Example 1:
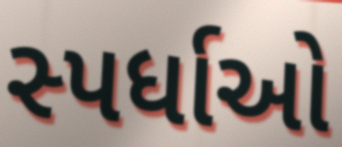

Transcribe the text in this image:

સ્પર્ધાઓ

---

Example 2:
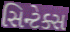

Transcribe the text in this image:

સિન્ટેક્સ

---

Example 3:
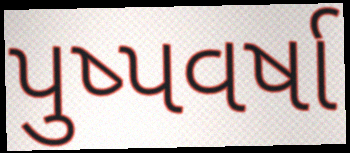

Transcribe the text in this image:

પુષ્પવર્ષા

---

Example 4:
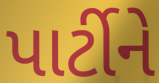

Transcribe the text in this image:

પાર્ટીને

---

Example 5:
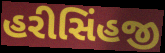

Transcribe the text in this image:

હરીસિંહજી